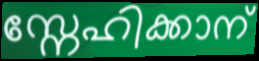
സ്നേഹിക്കാന്